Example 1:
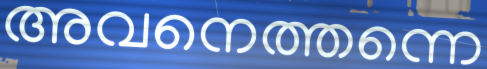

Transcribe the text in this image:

അവനെത്തന്നെ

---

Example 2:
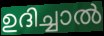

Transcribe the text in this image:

ഉദിച്ചാൽ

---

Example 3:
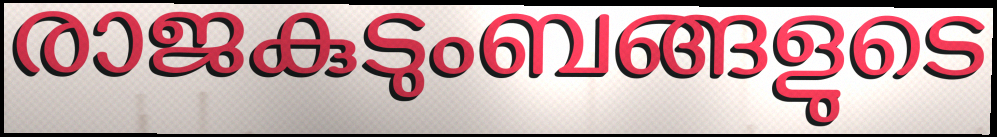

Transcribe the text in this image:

രാജകുടുംബങ്ങളുടെ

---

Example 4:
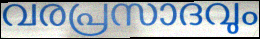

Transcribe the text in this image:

വരപ്രസാദവും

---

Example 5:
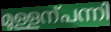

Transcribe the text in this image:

മുള്ളന്പന്നി